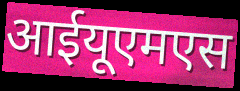
आईयूएमएस